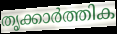
തൃക്കാർത്തിക